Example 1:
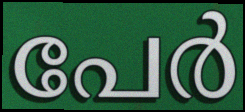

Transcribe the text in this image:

പേർ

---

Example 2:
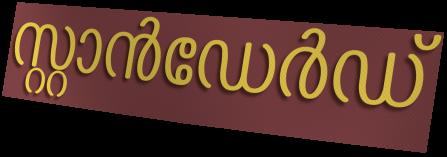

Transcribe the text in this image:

സ്റ്റാൻഡേർഡ്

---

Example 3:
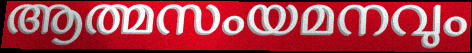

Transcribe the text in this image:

ആത്മസംയമനവും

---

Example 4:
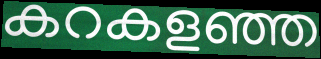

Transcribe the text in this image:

കറകളഞ്ഞ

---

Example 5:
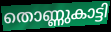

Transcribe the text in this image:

തൊണ്ണുകാട്ടി